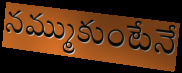
నమ్ముకుంటేనే